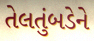
તેલતુંબડેને